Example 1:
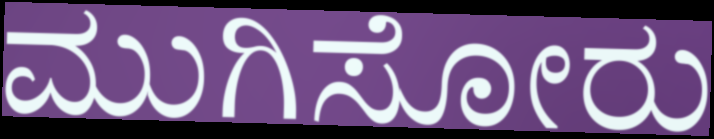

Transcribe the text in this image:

ಮುಗಿಸೋರು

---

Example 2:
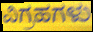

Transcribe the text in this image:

ವಿಗ್ರಹಗಳು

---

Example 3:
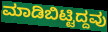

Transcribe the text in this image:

ಮಾಡಿಬಿಟ್ಟಿದ್ದವು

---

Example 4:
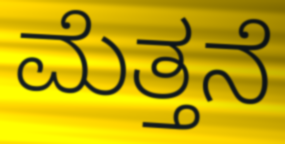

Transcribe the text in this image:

ಮೆತ್ತನೆ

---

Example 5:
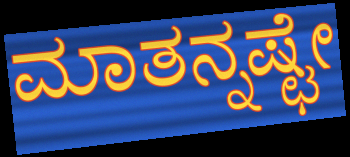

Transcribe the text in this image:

ಮಾತನ್ನಷ್ಟೇ